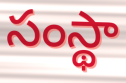
సంస్థా